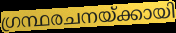
ഗ്രന്ഥരചനയ്ക്കായി